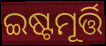
ଇଷ୍ଟମୂର୍ତ୍ତି